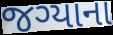
જગ્યાના